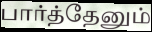
பார்த்தேனும்